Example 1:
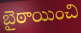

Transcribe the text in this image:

బైఠాయించి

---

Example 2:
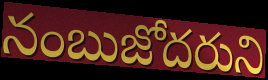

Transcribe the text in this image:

నంబుజోదరుని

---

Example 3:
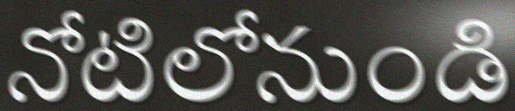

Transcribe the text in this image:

నోటిలోనుండి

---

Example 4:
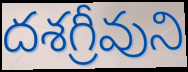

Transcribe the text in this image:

దశగ్రీవుని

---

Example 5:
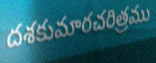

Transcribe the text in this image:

దశకుమారచరిత్రము